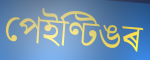
পেইণ্টিঙৰ